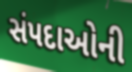
સંપદાઓની